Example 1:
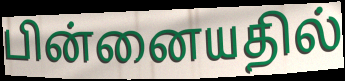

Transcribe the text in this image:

பின்னையதில்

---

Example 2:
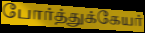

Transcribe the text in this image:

போர்த்துக்கேயர்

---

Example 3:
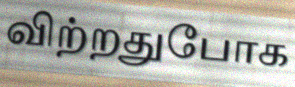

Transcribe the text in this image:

விற்றதுபோக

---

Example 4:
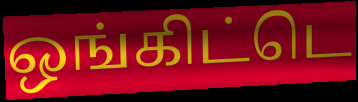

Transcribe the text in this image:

ஒங்கிட்டெ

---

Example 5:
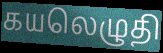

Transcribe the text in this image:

கயலெழுதி